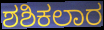
ಶಶಿಕಲಾರ